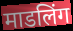
माडलिंग